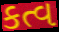
કત્વ